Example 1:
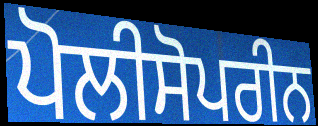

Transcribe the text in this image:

ਪੋਲੀਸੋਪਰੀਨ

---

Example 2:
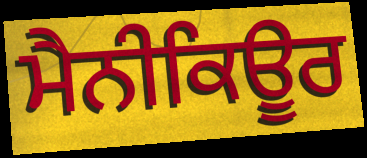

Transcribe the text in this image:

ਮੈਨੀਕਿਊਰ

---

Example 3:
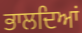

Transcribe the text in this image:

ਭਾਲਦਿਆਂ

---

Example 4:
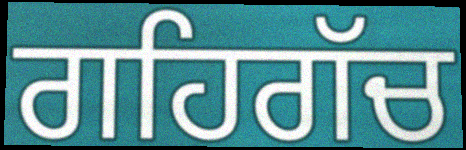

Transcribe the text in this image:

ਗਹਿਗੱਚ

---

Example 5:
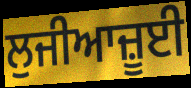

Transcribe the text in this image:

ਲੁਜੀਆਜ਼ੂਈ